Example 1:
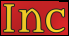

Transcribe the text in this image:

Inc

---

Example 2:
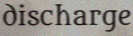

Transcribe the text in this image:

discharge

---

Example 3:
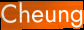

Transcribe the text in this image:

Cheung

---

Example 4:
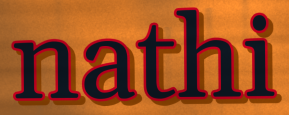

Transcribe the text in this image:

nathi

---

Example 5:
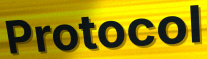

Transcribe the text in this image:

Protocol